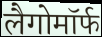
लैगोमॉर्फ